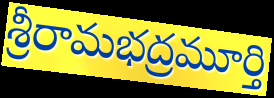
శ్రీరామభద్రమూర్తి